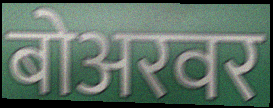
बोअरवर